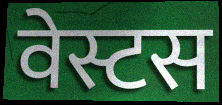
वेस्टस